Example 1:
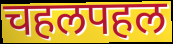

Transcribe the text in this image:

चहलपहल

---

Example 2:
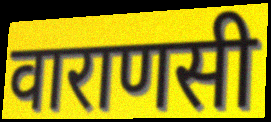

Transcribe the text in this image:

वाराणसी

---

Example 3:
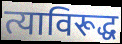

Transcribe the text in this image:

त्याविरूद्ध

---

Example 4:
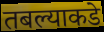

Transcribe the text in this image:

तबल्याकडे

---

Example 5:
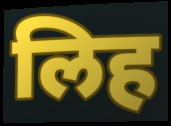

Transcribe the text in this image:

लिह